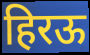
हिरऊ